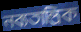
নব্যতান্ত্রিক